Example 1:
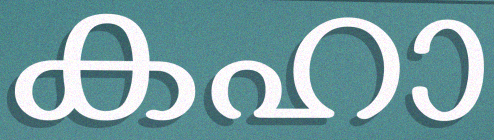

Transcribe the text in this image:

കഹാ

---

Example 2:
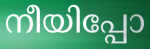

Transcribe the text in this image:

നീയിപ്പോ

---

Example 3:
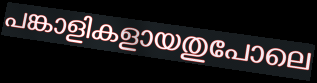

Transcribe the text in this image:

പങ്കാളികളായതുപോലെ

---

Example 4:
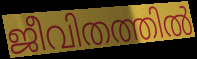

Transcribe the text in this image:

ജീവിതത്തിൽ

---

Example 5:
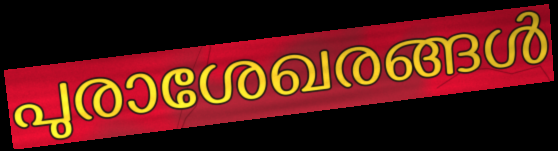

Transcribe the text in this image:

പുരാശേഖരങ്ങൾ